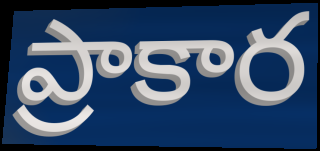
ప్రాకార